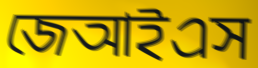
জেআইএস